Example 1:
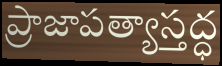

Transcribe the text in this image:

ప్రాజాపత్యాస్తద్ధ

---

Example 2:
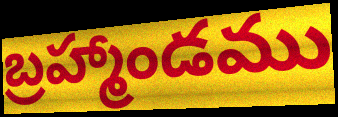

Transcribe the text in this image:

బ్రహ్మాండము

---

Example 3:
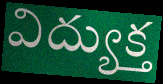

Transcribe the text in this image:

విద్యుక్త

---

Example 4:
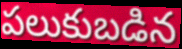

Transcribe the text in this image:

పలుకుబడిన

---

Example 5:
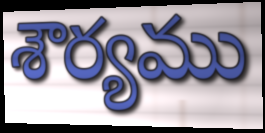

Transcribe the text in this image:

శౌర్యము